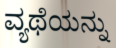
ವ್ಯಥೆಯನ್ನು